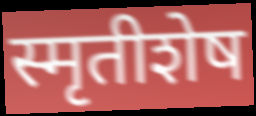
स्मृतीशेष